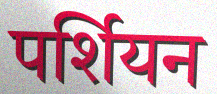
पर्शियन